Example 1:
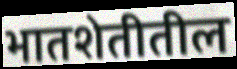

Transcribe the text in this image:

भातशेतीतील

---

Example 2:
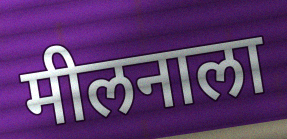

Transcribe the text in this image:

मीलनाला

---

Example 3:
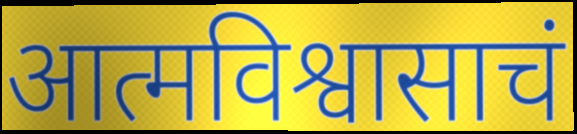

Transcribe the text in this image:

आत्मविश्वासाचं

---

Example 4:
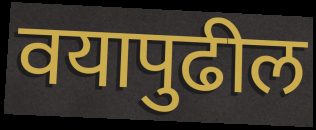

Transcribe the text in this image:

वयापुढील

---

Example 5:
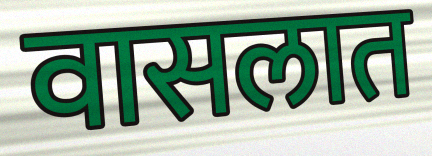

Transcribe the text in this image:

वासलात